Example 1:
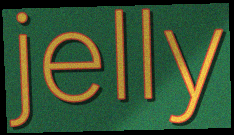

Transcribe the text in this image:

jelly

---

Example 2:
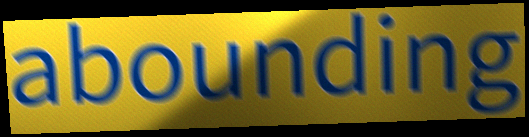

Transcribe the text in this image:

abounding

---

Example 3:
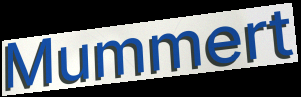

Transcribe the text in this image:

Mummert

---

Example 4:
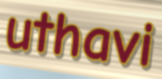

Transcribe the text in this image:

uthavi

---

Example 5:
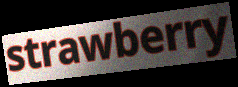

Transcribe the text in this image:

strawberry